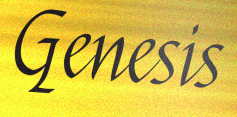
Genesis